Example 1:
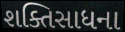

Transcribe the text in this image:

શક્તિસાધના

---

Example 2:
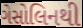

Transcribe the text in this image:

ગેસોલિનથી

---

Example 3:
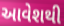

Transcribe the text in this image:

આવેશથી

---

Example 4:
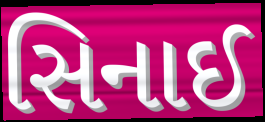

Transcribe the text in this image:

સિનાઈ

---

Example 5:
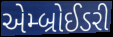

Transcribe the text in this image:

એમ્બ્રોઈડરી